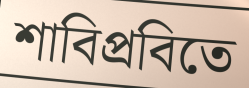
শাবিপ্রবিতে